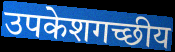
उपकेशगच्छीय